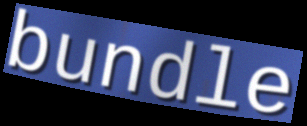
bundle